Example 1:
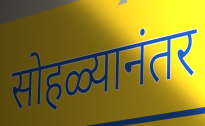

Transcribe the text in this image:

सोहळ्यानंतर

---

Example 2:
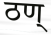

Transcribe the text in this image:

ठण्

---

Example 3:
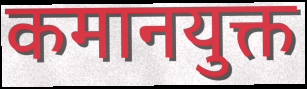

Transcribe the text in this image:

कमानयुक्त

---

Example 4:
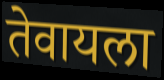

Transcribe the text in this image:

तेवायला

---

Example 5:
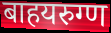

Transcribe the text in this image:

बाहयरुग्ण